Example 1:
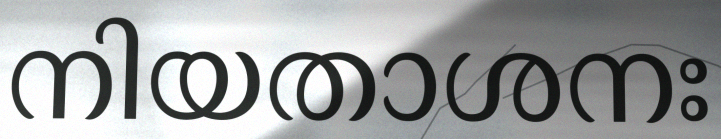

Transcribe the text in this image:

നിയതാശനഃ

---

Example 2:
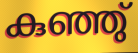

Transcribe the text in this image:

കുഞ്ഞു്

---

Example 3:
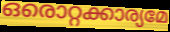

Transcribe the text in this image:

ഒരൊറ്റക്കാര്യമേ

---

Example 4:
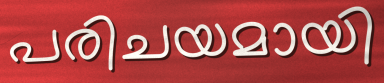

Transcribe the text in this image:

പരിചയമായി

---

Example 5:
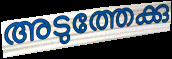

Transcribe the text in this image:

അടുത്തേക്കു